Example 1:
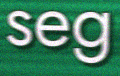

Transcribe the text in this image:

seg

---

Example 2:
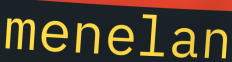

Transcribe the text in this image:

menelan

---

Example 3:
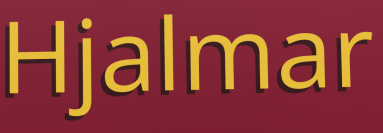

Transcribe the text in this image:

Hjalmar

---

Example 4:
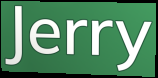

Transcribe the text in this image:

Jerry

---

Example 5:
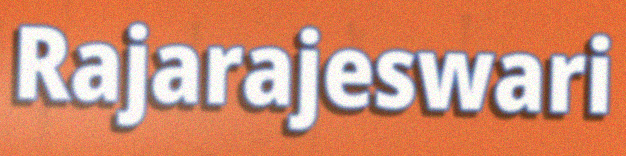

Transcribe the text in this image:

Rajarajeswari